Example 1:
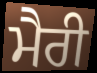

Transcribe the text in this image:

ਮੈਰੀ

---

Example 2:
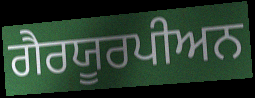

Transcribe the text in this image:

ਗੈਰਯੂਰਪੀਅਨ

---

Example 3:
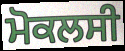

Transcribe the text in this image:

ਮੋਕਲਸੀ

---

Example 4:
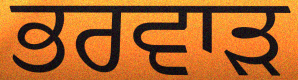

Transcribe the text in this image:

ਭਰਵਾੜ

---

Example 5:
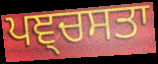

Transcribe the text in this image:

ਪਞ੍ਚਸਤਾ